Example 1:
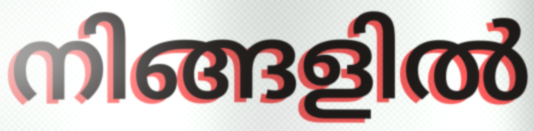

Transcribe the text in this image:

നിങ്ങളിൽ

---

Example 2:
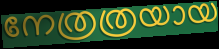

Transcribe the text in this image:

നേത്രത്രയായ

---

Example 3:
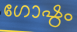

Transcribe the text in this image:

ഗോഷ്ഠം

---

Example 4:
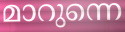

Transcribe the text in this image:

മാറുന്നെ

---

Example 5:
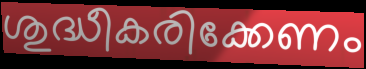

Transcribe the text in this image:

ശുദ്ധീകരിക്കേണം